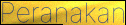
Peranakan